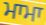
ਮਾਮਾ